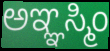
ಅಞ್ಞಸ್ಮಿಂ